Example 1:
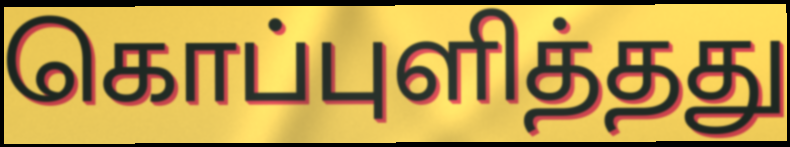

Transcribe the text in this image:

கொப்புளித்தது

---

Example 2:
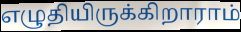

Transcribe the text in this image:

எழுதியிருக்கிறாராம்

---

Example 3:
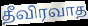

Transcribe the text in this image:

தீவிரவாத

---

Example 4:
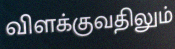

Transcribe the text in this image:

விளக்குவதிலும்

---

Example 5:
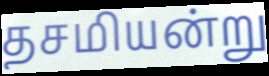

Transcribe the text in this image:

தசமியன்று